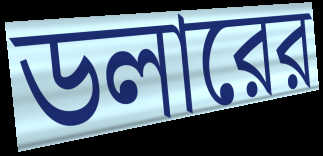
ডলারের